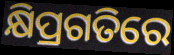
କ୍ଷିପ୍ରଗତିରେ